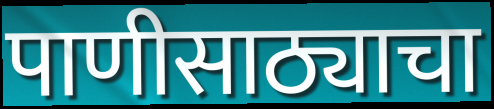
पाणीसाठ्याचा